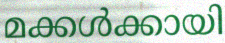
മക്കൾക്കായി